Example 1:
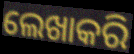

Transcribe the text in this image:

ଲେଖାକରି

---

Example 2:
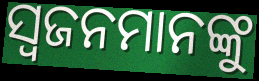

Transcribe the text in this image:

ସ୍ବଜନମାନଙ୍କୁ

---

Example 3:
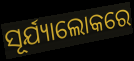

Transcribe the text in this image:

ସୂର୍ଯ୍ୟାଲୋକରେ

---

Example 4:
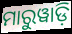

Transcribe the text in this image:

ମାରୁୱାଡ଼ି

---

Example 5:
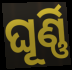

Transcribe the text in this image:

ଘୂର୍ଣ୍ଣି